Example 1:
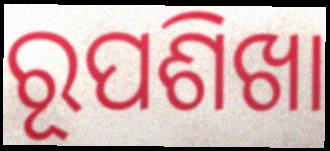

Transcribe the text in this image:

ରୂପଶିଖା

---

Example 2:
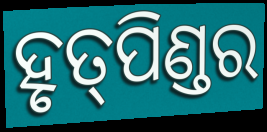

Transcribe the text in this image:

ହୃତ୍‍ପିଣ୍ଡର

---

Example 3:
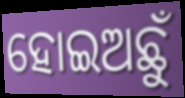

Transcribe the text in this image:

ହୋଇଅଛୁଁ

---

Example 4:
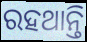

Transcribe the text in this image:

ରହଥାନ୍ତି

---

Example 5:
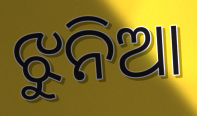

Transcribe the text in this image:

ଝୁନିଆ